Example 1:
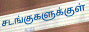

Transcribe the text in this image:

சடங்குகளுக்குள்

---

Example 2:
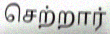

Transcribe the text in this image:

செற்றார்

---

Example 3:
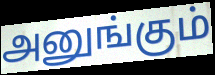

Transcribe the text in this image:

அனுங்கும்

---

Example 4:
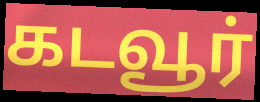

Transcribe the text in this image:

கடவூர்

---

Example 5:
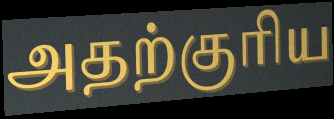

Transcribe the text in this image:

அதற்குரிய